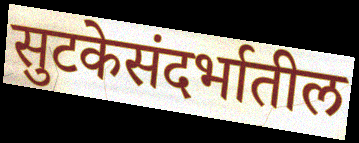
सुटकेसंदर्भातील